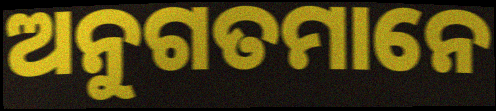
ଅନୁଗତମାନେ